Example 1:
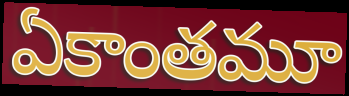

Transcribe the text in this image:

ఏకాంతమూ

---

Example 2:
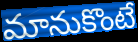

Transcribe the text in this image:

మానుకొంటే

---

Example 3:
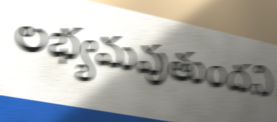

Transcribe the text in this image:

లభ్యమవుతుందని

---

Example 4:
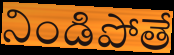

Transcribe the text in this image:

నిండిపోతే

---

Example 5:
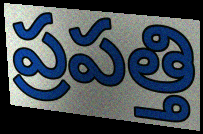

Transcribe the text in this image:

ప్రపత్తి